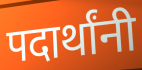
पदार्थांनी